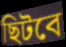
ছিটবে